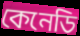
কেনেডি